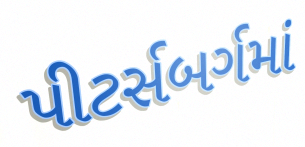
પીટર્સબર્ગમાં